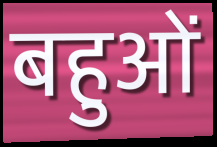
बहुओं